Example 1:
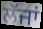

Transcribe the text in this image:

ਲੱਜਾਂ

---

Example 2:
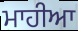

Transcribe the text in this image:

ਮਾਹੀਆ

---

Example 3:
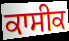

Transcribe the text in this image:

ਕਾਸੀਕ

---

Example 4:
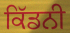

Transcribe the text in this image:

ਕਿੱਡਨੀ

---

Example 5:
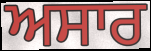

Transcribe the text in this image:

ਅਸਾਰ